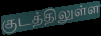
குடத்திலுள்ள